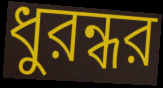
ধুরন্ধর